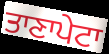
ਤਾਣਾਪੇਟਾ